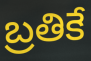
బ్రతికే